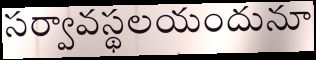
సర్వావస్థలయందునూ